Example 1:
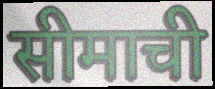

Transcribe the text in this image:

सीमाची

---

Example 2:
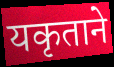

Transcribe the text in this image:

यकृताने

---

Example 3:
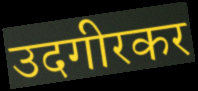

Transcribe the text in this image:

उदगीरकर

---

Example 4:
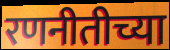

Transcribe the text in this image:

रणनीतीच्या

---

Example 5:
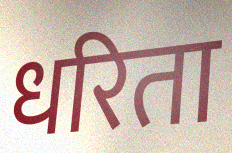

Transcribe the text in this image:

धरिता